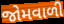
જોમવાળી